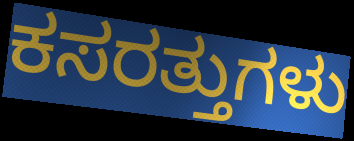
ಕಸರತ್ತುಗಳು